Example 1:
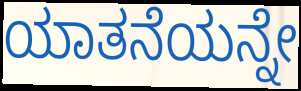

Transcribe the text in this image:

ಯಾತನೆಯನ್ನೇ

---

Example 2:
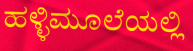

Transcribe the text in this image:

ಹಳ್ಳಿಮೂಲೆಯಲ್ಲಿ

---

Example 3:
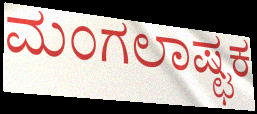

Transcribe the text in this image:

ಮಂಗಲಾಷ್ಟಕ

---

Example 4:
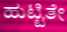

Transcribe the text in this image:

ಹುಟ್ಟಿತೇ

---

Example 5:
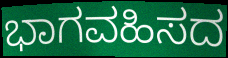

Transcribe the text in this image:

ಭಾಗವಹಿಸದ